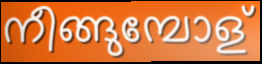
നീങ്ങുമ്പോള്